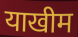
याखीम